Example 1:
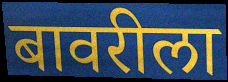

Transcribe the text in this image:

बावरीला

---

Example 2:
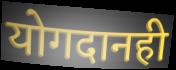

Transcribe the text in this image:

योगदानही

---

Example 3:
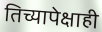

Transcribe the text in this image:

तिच्यापेक्षाही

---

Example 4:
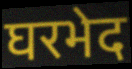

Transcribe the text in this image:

घरभेद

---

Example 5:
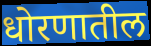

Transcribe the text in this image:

धोरणातील